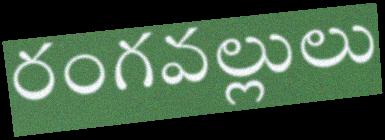
రంగవల్లులు